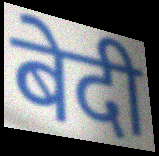
बेदी